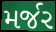
મર્જર